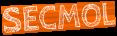
SECMOL